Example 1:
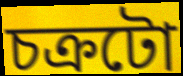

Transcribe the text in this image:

চক্ৰটো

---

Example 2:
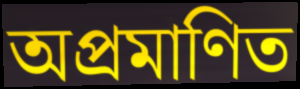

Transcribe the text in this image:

অপ্ৰমাণিত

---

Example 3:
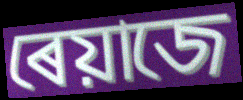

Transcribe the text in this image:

ৰেয়াজে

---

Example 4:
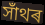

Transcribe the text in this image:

সাঁথৰ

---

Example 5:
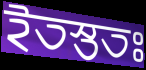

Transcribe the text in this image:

ইতস্ততঃ